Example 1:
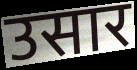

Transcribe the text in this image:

उसार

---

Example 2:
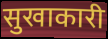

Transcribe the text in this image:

सुखाकारी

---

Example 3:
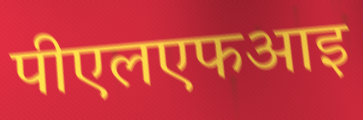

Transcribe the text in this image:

पीएलएफआइ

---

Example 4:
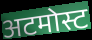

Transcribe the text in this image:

अटमोस्ट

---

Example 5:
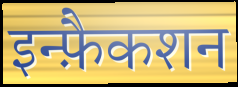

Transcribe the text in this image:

इन्फ़ैकशन